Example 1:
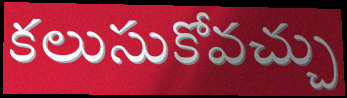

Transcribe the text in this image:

కలుసుకోవచ్చు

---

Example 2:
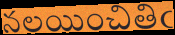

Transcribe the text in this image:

నలయించితిఁ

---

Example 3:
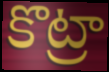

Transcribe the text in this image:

కొట్రా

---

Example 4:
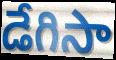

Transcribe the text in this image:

డేగిసా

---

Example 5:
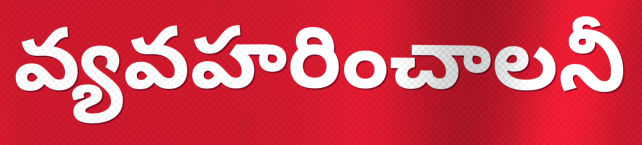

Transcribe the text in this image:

వ్యవహరించాలనీ